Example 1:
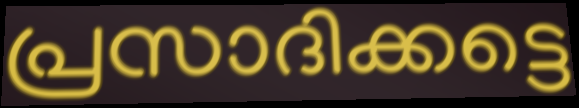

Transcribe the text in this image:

പ്രസാദിക്കട്ടെ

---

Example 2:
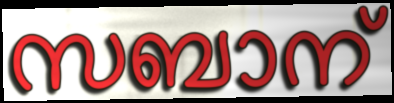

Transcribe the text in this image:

സബാന്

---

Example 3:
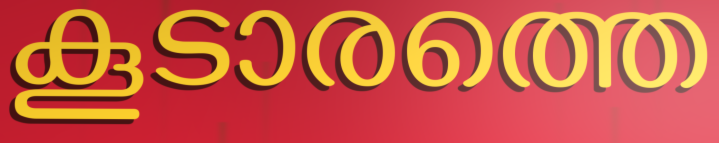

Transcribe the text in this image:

കൂടാരത്തെ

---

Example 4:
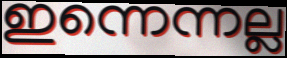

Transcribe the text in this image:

ഇന്നെന്നല്ല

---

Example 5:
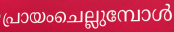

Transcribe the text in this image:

പ്രായംചെല്ലുമ്പോൾ